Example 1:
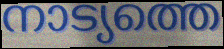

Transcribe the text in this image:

നാട്യത്തെ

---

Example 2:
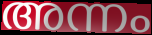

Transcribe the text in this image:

അന്നം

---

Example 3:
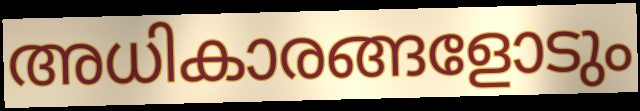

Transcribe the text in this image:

അധികാരങ്ങളോടും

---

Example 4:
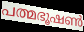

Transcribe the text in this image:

പത്മഭൂഷൺ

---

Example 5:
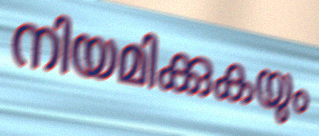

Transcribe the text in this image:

നിയമിക്കുകയും